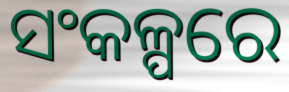
ସଂକଳ୍ପରେ